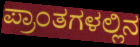
ಪ್ರಾಂತಗಳಲ್ಲಿನ